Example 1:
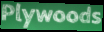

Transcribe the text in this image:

Plywoods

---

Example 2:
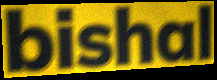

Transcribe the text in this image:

bishal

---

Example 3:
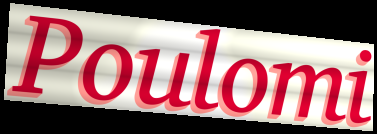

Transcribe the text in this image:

Poulomi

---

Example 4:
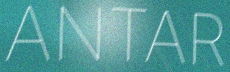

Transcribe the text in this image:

ANTAR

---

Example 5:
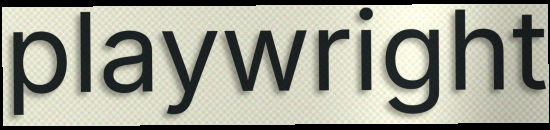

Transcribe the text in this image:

playwright